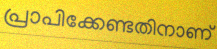
പ്രാപിക്കേണ്ടതിനാണ്